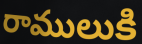
రాములుకి